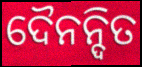
ଦୈନନ୍ଦିତ